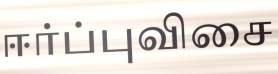
ஈர்ப்புவிசை